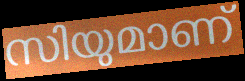
സിയുമാണ്